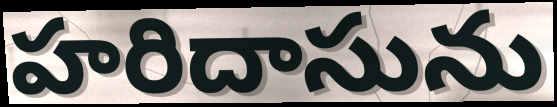
హరిదాసును